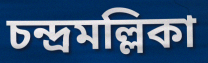
চন্দ্রমল্লিকা